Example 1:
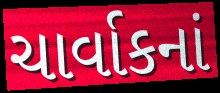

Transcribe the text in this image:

ચાર્વાકનાં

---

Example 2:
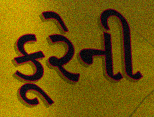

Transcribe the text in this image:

કૂરેની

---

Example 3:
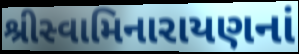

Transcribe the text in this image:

શ્રીસ્વામિનારાયણનાં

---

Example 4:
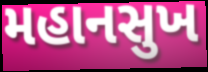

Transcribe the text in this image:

મહાનસુખ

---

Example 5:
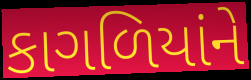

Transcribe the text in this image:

કાગળિયાંને